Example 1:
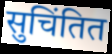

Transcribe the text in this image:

सुचिंतित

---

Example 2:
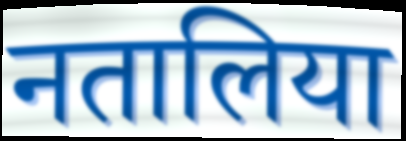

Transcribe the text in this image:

नतालिया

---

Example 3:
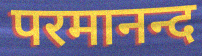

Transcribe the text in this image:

परमानन्द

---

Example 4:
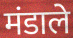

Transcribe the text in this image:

मंडाले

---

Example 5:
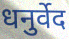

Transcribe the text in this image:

धनुर्वेद